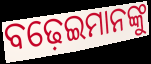
ବଢ଼େଇମାନଙ୍କୁ